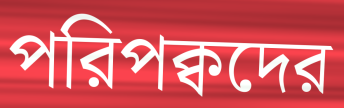
পরিপক্বদের